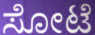
ಸೋಟೆ